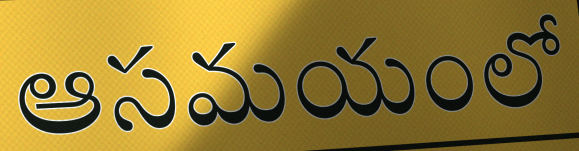
ఆసమయంలో